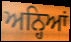
ਅਨ੍ਹਿਆਂ